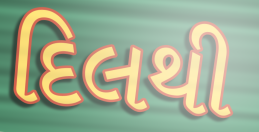
દિલથી